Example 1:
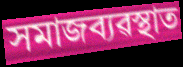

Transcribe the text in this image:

সমাজব্যৱস্থাত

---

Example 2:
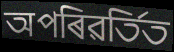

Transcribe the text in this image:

অপৰিৱৰ্তিত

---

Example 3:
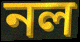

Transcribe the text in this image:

নল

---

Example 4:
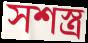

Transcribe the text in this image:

সশস্ত্ৰ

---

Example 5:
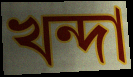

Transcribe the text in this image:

খন্দা